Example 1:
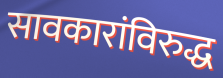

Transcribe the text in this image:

सावकारांविरुद्ध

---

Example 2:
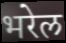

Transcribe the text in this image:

भरेल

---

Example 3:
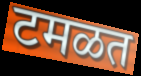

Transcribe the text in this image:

टमळत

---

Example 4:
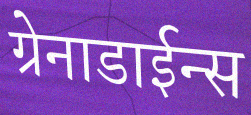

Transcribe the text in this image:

ग्रेनाडाईन्स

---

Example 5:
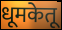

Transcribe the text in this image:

धूमकेतू